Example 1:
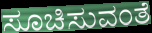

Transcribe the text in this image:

ಸೂಚಿಸುವಂತೆ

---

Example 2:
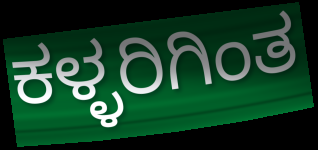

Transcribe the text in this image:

ಕಳ್ಳರಿಗಿಂತ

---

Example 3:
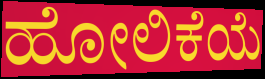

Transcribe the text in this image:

ಹೋಲಿಕೆಯೆ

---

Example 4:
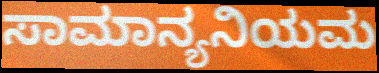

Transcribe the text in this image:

ಸಾಮಾನ್ಯನಿಯಮ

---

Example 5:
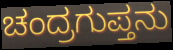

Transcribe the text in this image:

ಚಂದ್ರಗುಪ್ತನು